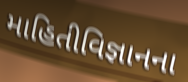
માહિતીવિજ્ઞાનના